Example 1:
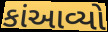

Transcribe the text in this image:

કાંઆવ્યો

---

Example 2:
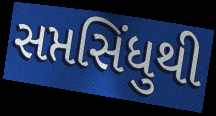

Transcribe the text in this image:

સપ્તસિંધુથી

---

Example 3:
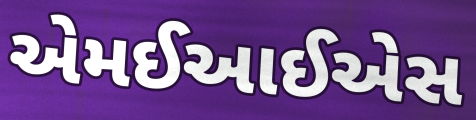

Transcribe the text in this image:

એમઈઆઈએસ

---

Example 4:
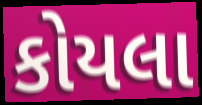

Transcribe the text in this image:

કોયલા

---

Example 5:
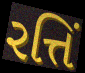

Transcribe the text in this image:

રત્તિં